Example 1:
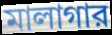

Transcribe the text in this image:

মালাগার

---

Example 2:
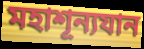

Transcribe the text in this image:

মহাশূন্যযান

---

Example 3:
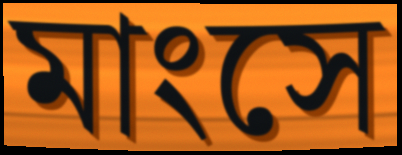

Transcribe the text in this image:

মাংসে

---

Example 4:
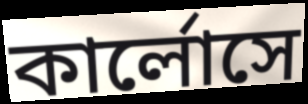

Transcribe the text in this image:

কার্লোসে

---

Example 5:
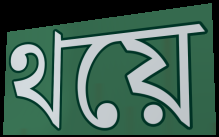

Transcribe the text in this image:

থয়ে